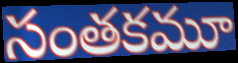
సంతకమూ